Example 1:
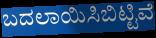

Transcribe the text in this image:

ಬದಲಾಯಿಸಿಬಿಟ್ಟಿವೆ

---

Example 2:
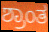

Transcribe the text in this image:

ಶ್ರಾಂತ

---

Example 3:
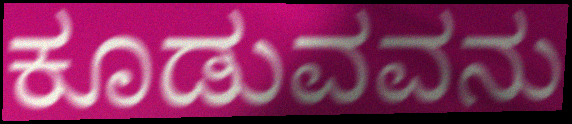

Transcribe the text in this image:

ಕೂಡುವವನು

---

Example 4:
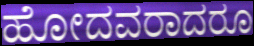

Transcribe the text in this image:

ಹೋದವರಾದರೂ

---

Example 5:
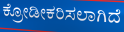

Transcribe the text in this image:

ಕ್ರೋಡೀಕರಿಸಲಾಗಿದೆ